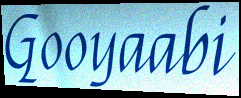
Gooyaabi